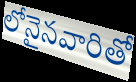
లోనైనవారితో